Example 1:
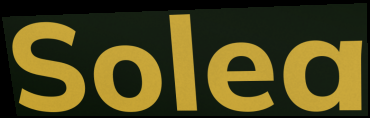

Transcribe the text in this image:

Solea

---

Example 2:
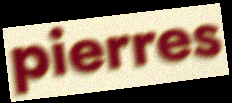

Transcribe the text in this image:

pierres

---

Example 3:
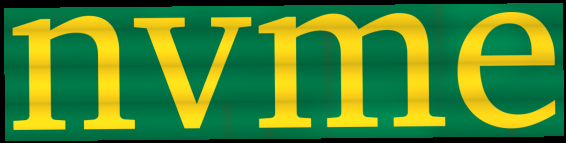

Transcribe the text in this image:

nvme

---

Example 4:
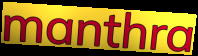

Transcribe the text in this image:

manthra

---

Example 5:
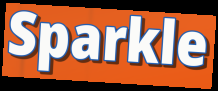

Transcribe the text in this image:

Sparkle